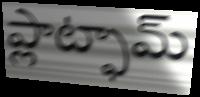
ప్లాట్ఫామ్